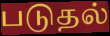
படுதல்